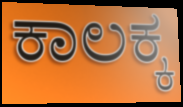
ಕಾಲಕ್ಕ